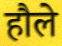
हौले